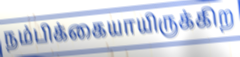
நம்பிக்கையாயிருக்கிற